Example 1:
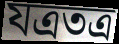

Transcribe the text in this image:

যত্রতত্র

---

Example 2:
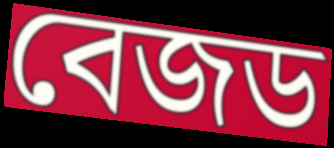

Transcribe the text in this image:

বেজড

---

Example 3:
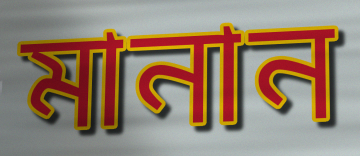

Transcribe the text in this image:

মানান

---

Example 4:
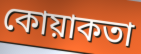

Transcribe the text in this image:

কোয়াকতা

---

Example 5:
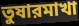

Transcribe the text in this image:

তুষারমাখা